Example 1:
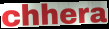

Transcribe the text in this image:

chhera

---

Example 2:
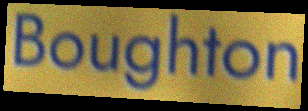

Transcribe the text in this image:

Boughton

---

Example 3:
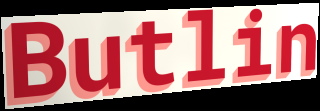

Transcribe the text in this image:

Butlin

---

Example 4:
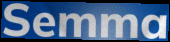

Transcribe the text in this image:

Semma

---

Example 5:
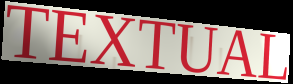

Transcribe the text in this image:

TEXTUAL